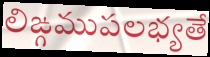
లిఙ్గముపలభ్యతే